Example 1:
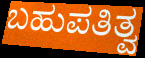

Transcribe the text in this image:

ಬಹುಪತಿತ್ವ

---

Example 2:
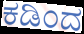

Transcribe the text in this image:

ಕಡಿಂದ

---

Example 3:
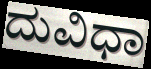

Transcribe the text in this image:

ದುವಿಧಾ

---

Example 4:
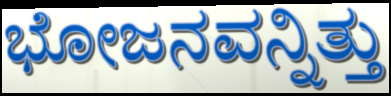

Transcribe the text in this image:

ಭೋಜನವನ್ನಿತ್ತು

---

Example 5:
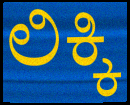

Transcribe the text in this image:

ಲಿಕ್ಕಿ